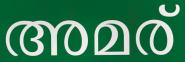
അമര്